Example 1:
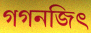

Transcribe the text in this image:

গগনজিৎ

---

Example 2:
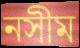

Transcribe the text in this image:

নসীম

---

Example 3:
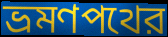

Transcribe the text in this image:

ভ্রমণপথের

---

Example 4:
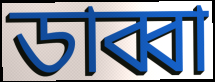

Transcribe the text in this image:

ডাব্বা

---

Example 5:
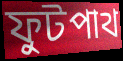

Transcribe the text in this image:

ফুটপাথ